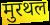
मुरथल